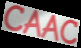
CAAC